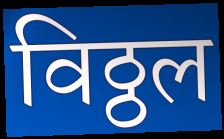
विठ्ठल